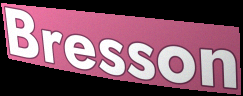
Bresson